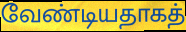
வேண்டியதாகத்